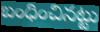
బంధించినట్టు